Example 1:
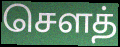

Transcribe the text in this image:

சௌத்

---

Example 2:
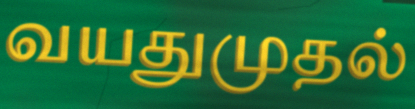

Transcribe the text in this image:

வயதுமுதல்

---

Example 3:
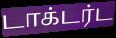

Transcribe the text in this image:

டாக்டர்ட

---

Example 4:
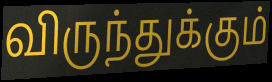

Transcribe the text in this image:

விருந்துக்கும்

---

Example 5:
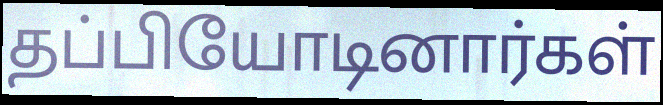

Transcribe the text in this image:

தப்பியோடினார்கள்